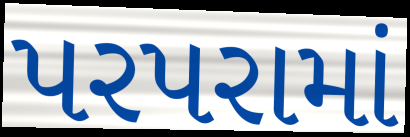
પરપરામાં